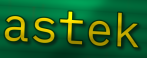
astek